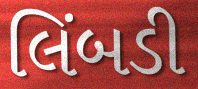
લિંબડી